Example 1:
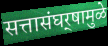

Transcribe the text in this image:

सत्तासंघर्षामुळे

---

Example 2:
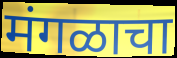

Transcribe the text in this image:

मंगळाचा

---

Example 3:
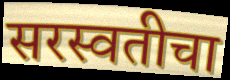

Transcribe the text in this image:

सरस्वतीचा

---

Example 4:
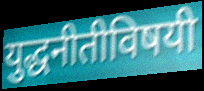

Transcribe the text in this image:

युद्धनीतीविषयी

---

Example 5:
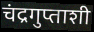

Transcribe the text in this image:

चंद्रगुप्ताशी